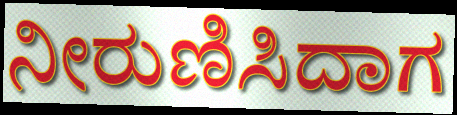
ನೀರುಣಿಸಿದಾಗ